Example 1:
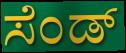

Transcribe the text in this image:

ಸೆಂಡ್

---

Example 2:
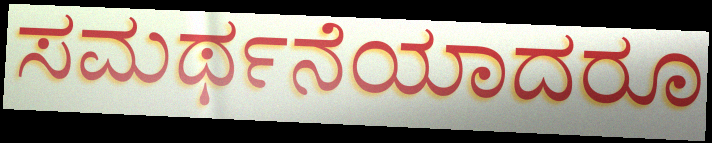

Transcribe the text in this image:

ಸಮರ್ಥನೆಯಾದರೂ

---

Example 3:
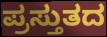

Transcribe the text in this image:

ಪ್ರಸ್ತುತದ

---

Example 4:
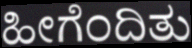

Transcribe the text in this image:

ಹೀಗೆಂದಿತು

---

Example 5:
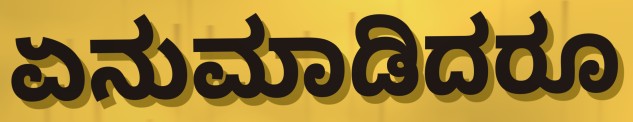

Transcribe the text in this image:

ಏನುಮಾಡಿದರೂ